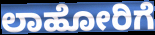
ಲಾಹೋರಿಗೆ